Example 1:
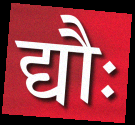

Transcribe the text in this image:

द्यौः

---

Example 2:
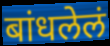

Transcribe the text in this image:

बांधलेलं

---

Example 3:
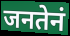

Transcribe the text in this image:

जनतेनं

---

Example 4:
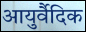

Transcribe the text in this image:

आयुर्वैदिक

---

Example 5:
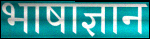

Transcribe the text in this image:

भाषाज्ञान